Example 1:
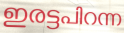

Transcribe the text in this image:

ഇരട്ടപിറന്ന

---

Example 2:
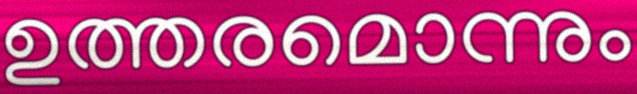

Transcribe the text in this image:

ഉത്തരമൊന്നും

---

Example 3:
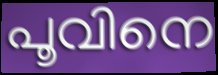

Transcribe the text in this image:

പൂവിനെ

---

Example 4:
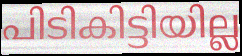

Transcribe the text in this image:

പിടികിട്ടിയില്ല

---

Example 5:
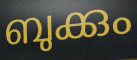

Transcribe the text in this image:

ബുക്കും